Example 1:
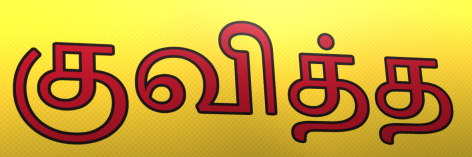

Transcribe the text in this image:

குவித்த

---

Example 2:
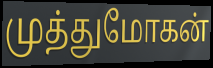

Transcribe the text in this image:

முத்துமோகன்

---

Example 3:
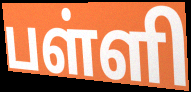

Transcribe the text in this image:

பள்ளி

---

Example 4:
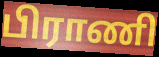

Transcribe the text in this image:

பிராணி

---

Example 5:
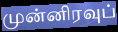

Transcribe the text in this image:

முன்னிரவுப்